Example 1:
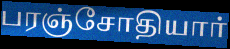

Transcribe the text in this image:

பரஞ்சோதியார்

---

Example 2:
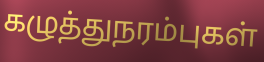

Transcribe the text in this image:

கழுத்துநரம்புகள்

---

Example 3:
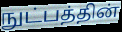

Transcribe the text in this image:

நுட்பத்தின்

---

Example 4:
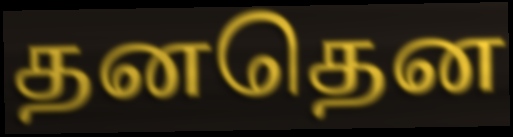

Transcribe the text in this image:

தனதென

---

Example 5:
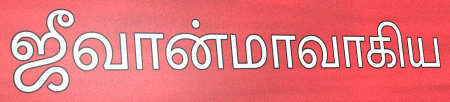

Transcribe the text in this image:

ஜீவான்மாவாகிய